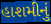
હાશમીનું